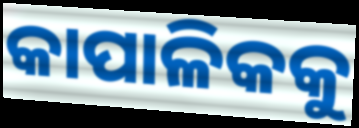
କାପାଳିକକୁ